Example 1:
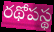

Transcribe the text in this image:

రథోపస్థ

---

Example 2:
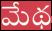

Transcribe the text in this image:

మేథ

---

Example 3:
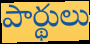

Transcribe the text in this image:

పార్థులు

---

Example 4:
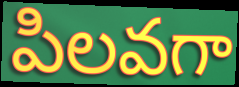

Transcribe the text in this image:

పిలవగా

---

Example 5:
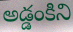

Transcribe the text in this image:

అడ్డంకిని